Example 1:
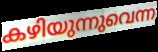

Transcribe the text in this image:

കഴിയുന്നുവെന്ന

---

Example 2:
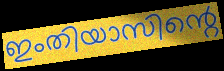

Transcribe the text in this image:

ഇംതിയാസിന്റെ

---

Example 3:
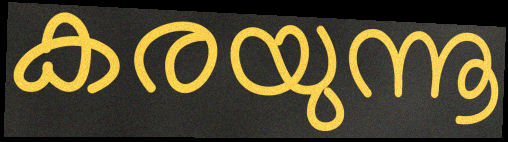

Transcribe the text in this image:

കരയുന്നൂ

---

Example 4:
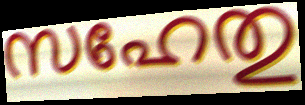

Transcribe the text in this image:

സഹേതു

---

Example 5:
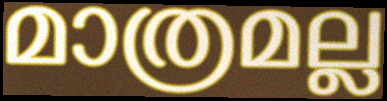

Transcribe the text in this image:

മാത്രമല്ല